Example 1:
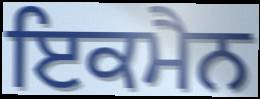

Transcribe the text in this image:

ਇਕਮੈਨ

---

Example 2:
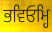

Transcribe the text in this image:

ਭਵਿਓਮ੍ਹਿ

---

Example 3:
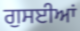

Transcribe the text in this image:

ਗੁਸਈਆਂ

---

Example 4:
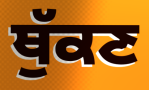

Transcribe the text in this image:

ਥੁੱਕਣ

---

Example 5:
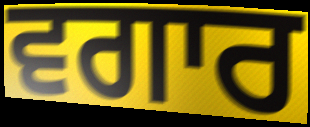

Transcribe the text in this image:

ਵਗਾਰ